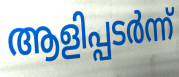
ആളിപ്പടർന്ന്